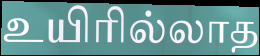
உயிரில்லாத